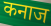
कनाज